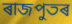
ৰাজপুতৰ